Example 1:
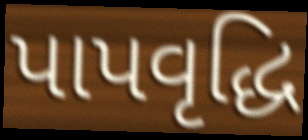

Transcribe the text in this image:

પાપવૃદ્ધિ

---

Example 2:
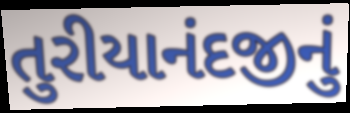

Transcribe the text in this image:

તુરીયાનંદજીનું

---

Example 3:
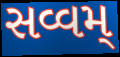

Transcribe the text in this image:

સવ્વમ્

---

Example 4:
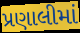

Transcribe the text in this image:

પ્રણાલીમાં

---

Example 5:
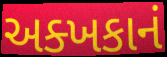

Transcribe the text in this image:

અક્ખકાનં